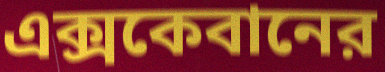
এক্সকেবানের